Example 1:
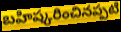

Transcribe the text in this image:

బహిష్కరించినప్పటి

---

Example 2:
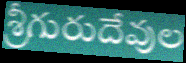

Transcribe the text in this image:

శ్రీగురుదేవుల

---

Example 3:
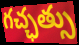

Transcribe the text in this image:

గచ్ఛత్సు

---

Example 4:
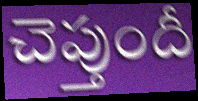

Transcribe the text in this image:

చెప్తుందీ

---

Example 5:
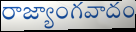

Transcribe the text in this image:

రాజ్యాంగవాదం